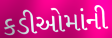
કડીઓમાંની